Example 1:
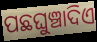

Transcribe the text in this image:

ପଛଘୁଞ୍ଚାଦିଏ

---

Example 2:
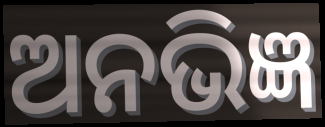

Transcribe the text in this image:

ଅନଭିଜ୍ଞ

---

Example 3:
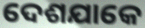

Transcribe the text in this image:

ଦେଶଯାକେ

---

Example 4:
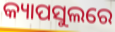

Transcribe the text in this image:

କ୍ୟାପସୁଲରେ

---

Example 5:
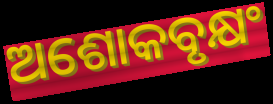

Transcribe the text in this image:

ଅଶୋକବୃକ୍ଷଂ